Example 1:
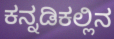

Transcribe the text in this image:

ಕನ್ನಡಿಕಲ್ಲಿನ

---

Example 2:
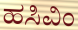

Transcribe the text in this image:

ಹಸಿವಿಂ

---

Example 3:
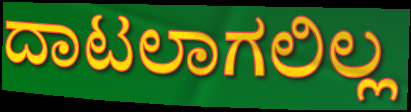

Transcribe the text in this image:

ದಾಟಲಾಗಲಿಲ್ಲ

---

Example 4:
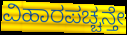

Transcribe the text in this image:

ವಿಹಾರಪಚ್ಚನ್ತೇ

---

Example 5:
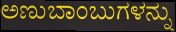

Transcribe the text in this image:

ಅಣುಬಾಂಬುಗಳನ್ನು